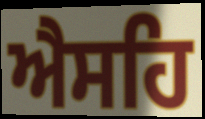
ਐਸਹਿ